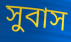
সুবাস